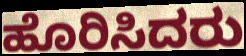
ಹೊರಿಸಿದರು